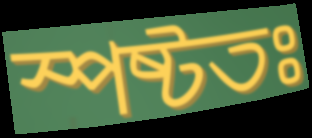
স্পষ্টতঃ